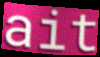
ait